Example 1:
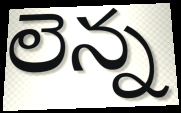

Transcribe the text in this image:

లెన్న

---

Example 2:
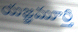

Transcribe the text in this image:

యజ్ఞమూర్తి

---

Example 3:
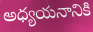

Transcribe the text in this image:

అధ్యయనానికి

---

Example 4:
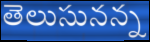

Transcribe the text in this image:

తెలుసునన్న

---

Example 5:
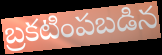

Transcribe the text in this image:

బ్రకటింపబడిన